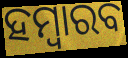
ହମ୍ବାରବ